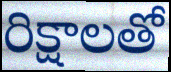
రిక్షాలతో